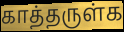
காத்தருள்க